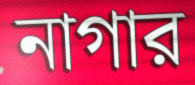
নাগার